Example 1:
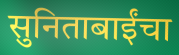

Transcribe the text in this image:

सुनिताबाईंचा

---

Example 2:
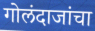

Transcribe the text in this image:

गोलंदाजांचा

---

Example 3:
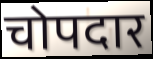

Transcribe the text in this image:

चोपदार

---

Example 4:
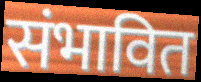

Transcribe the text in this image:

संभावित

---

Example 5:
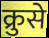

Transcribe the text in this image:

क्रुसे